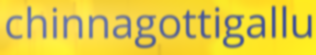
chinnagottigallu